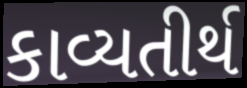
કાવ્યતીર્થ